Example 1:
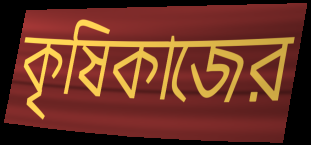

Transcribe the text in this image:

কৃষিকাজের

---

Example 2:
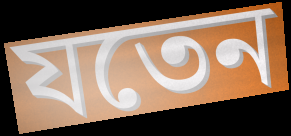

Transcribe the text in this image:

যতেন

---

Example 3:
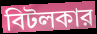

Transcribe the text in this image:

বিটলকার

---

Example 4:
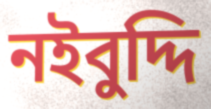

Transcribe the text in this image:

নইবুদ্দি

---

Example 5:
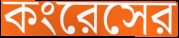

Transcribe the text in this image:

কংরেসের